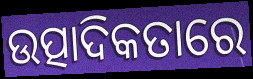
ଉତ୍ପାଦିକତାରେ